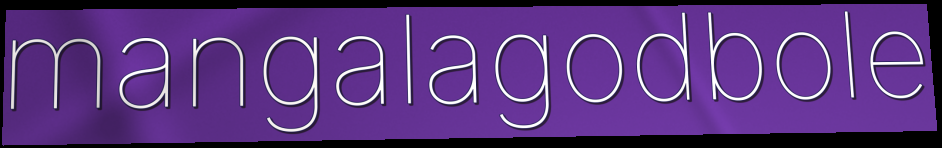
mangalagodbole